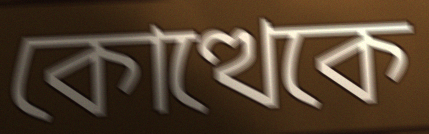
কোত্থেকে